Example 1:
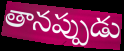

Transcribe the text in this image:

తానప్పుడు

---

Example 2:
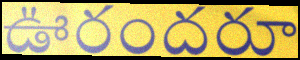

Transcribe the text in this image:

ఊరందరూ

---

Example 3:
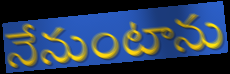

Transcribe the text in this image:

నేనుంటాను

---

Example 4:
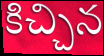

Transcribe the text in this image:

కిచ్చిన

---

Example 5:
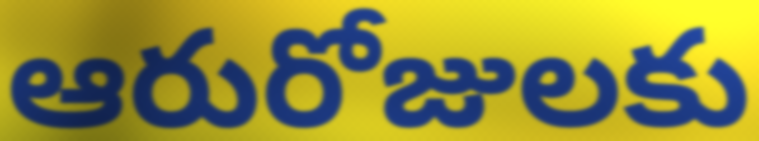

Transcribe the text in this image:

ఆరురోజులకు